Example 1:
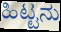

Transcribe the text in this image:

ಹಿಟ್ಟನು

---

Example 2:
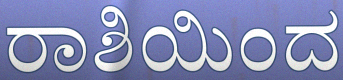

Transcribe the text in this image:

ರಾಶಿಯಿಂದ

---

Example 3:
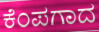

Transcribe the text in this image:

ಕೆಂಪಗಾದ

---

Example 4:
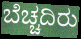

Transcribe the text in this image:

ಬೆಚ್ಚದಿರು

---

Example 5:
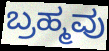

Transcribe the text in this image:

ಬ್ರಹ್ಮವು